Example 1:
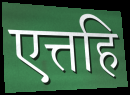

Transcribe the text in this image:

एत्तहि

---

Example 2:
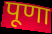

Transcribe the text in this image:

पूणा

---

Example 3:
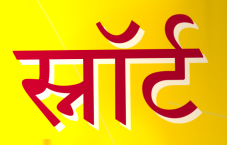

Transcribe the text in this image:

स्नॉर्ट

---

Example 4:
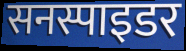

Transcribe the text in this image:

सनस्पाइडर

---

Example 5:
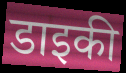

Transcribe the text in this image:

डाइकी